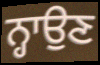
ਨ੍ਹਾਉਣ